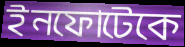
ইনফোটেকে